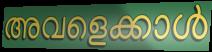
അവളെക്കാൾ